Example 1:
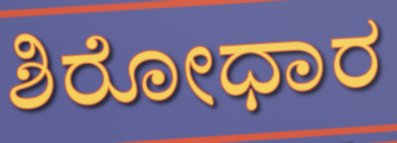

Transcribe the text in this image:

ಶಿರೋಧಾರ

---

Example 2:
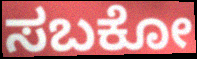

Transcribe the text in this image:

ಸಬಕೋ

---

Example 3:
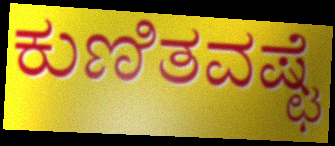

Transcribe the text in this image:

ಕುಣಿತವಷ್ಟೆ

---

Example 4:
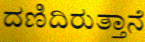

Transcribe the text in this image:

ದಣಿದಿರುತ್ತಾನೆ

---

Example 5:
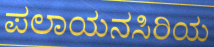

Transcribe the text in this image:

ಪಲಾಯನಸಿರಿಯ